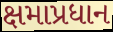
ક્ષમાપ્રધાન